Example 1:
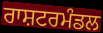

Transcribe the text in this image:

ਰਾਸ਼ਟਰਮੰਡਲ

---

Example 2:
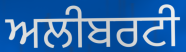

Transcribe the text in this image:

ਅਲੀਬਰਟੀ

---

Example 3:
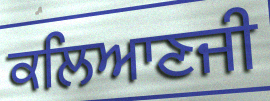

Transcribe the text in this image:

ਕਲਿਆਣਜੀ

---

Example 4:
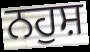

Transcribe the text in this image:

ਨਹੁਸ਼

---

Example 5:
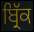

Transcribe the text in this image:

ਬ੍ਰਿੱਕ